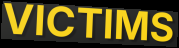
VICTIMS